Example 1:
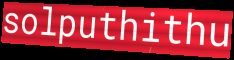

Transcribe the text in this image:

solputhithu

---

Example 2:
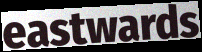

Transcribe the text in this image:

eastwards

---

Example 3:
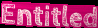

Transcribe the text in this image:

Entitled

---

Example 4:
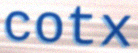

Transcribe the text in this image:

cotx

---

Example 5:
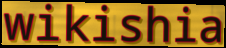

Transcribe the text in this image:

wikishia